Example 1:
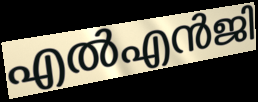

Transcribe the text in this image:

എൽഎൻജി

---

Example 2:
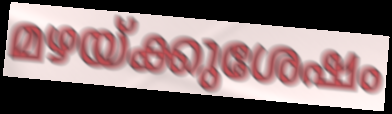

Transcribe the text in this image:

മഴയ്ക്കുശേഷം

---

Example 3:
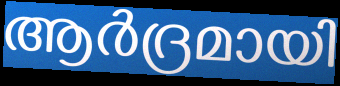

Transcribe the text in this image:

ആർദ്രമായി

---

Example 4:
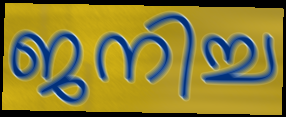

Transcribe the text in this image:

ജനിച്ച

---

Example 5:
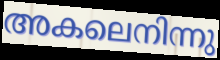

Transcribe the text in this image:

അകലെനിന്നു